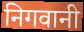
निगवानी